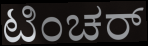
ಟಿಂಚರ್